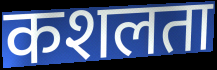
कशलता